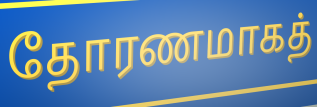
தோரணமாகத்